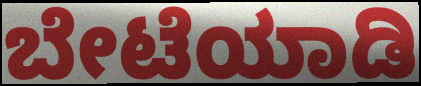
ಬೇಟೆಯಾಡಿ